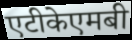
एटीकेएमबी